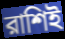
রাশিই